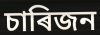
চাৰিজন